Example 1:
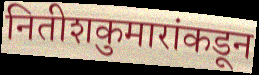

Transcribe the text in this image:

नितीशकुमारांकडून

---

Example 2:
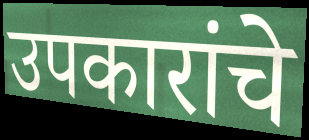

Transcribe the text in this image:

उपकारांचे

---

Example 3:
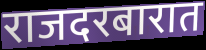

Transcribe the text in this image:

राजदरबारात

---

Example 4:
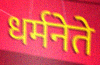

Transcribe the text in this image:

धर्मनेते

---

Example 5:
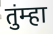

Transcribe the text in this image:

तुंम्हा